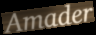
Amader